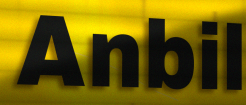
Anbil